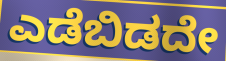
ಎಡೆಬಿಡದೇ